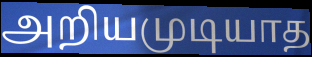
அறியமுடியாத